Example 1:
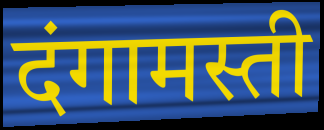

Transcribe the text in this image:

दंगामस्ती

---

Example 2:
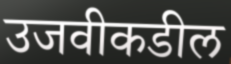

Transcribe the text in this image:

उजवीकडील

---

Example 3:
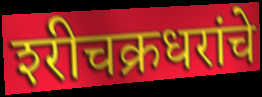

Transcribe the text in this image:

श्रीचक्रधरांचे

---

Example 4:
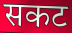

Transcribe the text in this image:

सकट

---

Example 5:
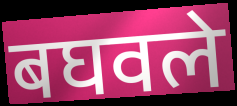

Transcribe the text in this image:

बघवले